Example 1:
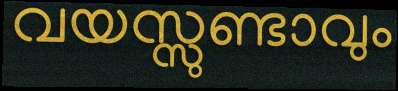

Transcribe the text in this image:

വയസ്സുണ്ടാവും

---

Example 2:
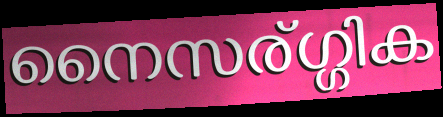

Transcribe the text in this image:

നൈസര്ഗ്ഗിക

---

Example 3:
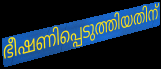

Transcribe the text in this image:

ഭീഷണിപ്പെടുത്തിയതിന്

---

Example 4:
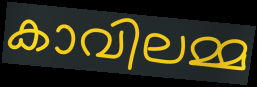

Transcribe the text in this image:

കാവിലമ്മ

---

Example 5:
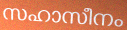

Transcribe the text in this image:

സഹാസീനം